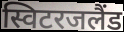
स्विटरजलैंड